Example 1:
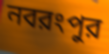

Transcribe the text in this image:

নবরংপুর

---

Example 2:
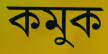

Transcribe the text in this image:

কমুক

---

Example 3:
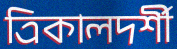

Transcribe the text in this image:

ত্রিকালদর্শী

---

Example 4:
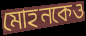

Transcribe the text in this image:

মোহনকেও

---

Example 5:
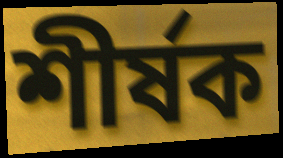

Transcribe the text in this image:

শীর্ষক